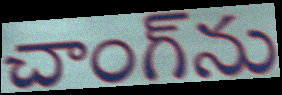
చాంగ్‌ను